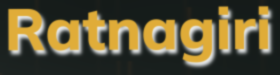
Ratnagiri